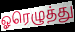
ஓரெழுத்து